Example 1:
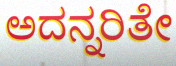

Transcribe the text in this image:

ಅದನ್ನರಿತೇ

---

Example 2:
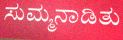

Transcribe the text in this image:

ಸುಮ್ಮನಾಡಿತು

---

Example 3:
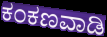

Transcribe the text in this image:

ಕಂಕಣವಾಡಿ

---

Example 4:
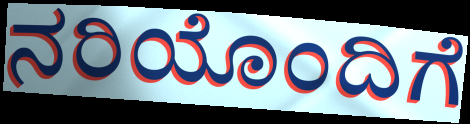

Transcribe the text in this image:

ನರಿಯೊಂದಿಗೆ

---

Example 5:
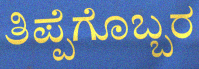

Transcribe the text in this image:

ತಿಪ್ಪೆಗೊಬ್ಬರ